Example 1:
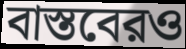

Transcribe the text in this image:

বাস্তবেরও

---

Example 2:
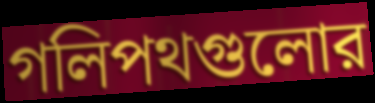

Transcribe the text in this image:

গলিপথগুলোর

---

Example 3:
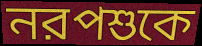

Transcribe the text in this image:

নরপশুকে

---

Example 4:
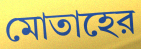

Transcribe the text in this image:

মোতাহের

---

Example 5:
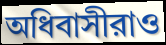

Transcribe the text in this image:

অধিবাসীরাও